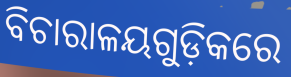
ବିଚାରାଳୟଗୁଡ଼ିକରେ